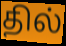
தில்